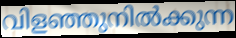
വിളഞ്ഞുനിൽക്കുന്ന